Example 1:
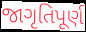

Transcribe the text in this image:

જાગૃતિપૂર્ણ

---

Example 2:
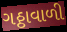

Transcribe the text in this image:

ગઠ્ઠાવાળી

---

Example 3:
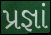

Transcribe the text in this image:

પ્રજ્ઞાં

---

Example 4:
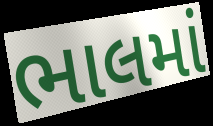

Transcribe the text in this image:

ભાલમાં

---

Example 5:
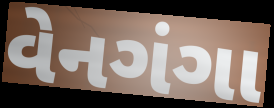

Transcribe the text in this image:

વેનગંગા